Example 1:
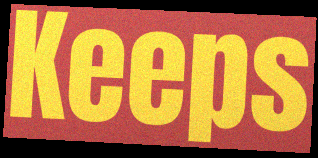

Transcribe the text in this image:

Keeps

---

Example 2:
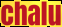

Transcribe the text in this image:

chalu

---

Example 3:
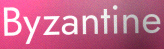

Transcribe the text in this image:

Byzantine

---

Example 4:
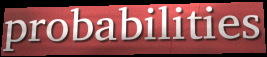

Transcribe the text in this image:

probabilities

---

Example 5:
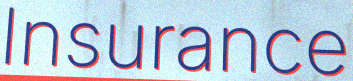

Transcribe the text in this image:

Insurance